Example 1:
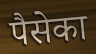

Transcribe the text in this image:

पैसेका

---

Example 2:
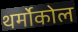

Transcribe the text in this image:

थर्मोकोल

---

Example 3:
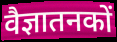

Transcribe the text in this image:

वैज्ञातनकों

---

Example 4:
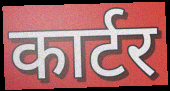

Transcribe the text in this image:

कार्टर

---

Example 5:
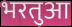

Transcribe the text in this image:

भरतुआ